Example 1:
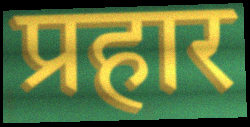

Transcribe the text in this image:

प्रहार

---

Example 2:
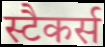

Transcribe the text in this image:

स्टैकर्स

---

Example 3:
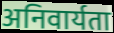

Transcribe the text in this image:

अनिवार्यता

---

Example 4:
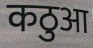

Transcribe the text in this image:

कठुआ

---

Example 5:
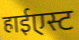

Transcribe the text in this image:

हाईएस्ट